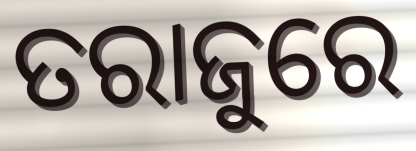
ତରାଜୁରେ